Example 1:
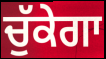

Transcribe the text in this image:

ਚੁੱਕੇਗਾ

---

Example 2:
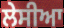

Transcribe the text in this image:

ਲੇਸੀਆ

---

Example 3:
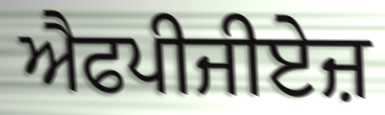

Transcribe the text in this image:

ਐਫਪੀਜੀਏਜ਼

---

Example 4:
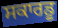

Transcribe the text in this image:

ਸਕਾਰਡੂ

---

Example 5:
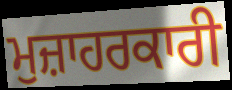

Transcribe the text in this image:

ਮੁਜ਼ਾਹਰਕਾਰੀ